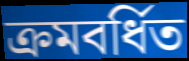
ক্রমবর্ধিত